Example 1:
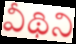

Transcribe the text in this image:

వీథిని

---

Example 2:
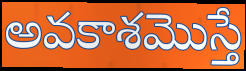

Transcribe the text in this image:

అవకాశమొస్తే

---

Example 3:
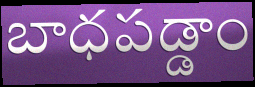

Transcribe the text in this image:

బాధపడ్డాం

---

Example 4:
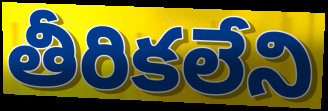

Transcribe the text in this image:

తీరికలేని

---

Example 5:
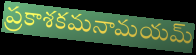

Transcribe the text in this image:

ప్రకాశకమనామయమ్